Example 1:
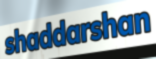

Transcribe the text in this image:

shaddarshan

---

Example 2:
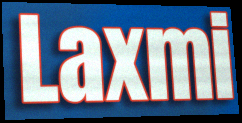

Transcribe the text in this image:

Laxmi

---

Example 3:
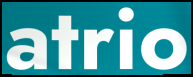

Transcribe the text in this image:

atrio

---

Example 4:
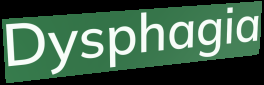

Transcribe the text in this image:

Dysphagia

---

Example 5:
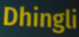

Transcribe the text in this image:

Dhingli